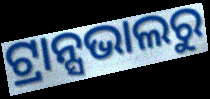
ଟ୍ରାନ୍ସଭାଲରୁ